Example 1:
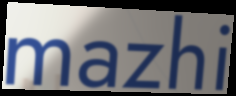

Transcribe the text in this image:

mazhi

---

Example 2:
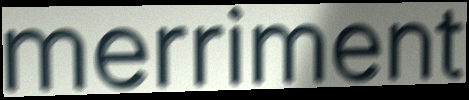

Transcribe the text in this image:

merriment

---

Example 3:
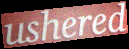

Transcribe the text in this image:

ushered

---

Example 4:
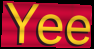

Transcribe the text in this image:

Yee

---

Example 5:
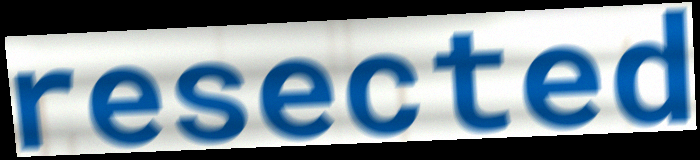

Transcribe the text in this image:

resected